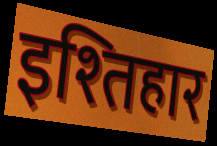
इश्तिहार